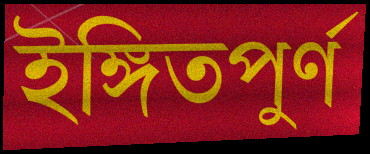
ইঙ্গিতপুর্ণ